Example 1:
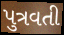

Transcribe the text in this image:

પુત્રવતી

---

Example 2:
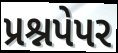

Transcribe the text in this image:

પ્રશ્નપેપર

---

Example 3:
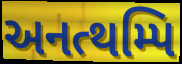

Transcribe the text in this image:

અનત્થમ્પિ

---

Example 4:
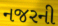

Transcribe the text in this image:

નજરની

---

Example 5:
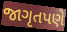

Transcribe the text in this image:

જાગૃતપણે